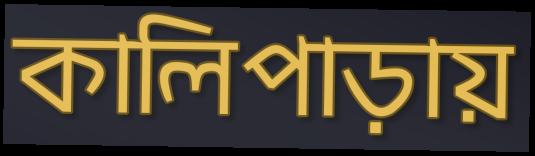
কালিপাড়ায়